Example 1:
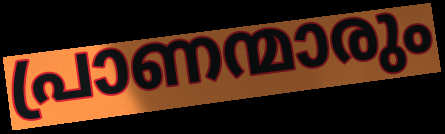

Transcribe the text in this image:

പ്രാണന്മാരും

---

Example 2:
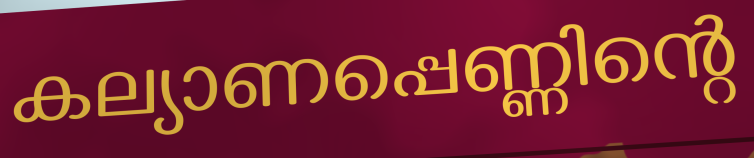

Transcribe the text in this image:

കല്യാണപ്പെണ്ണിന്റെ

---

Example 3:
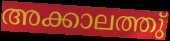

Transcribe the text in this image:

അക്കാലത്തു്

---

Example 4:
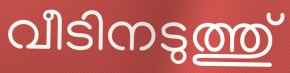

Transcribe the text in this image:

വീടിനടുത്തു്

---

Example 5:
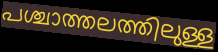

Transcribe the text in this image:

പശ്ചാത്തലത്തിലുള്ള